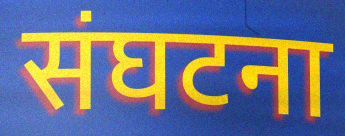
संघटना